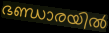
ഭണ്ഡാരയിൽ